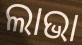
ଲାଭା